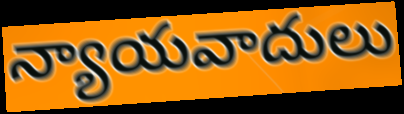
న్యాయవాదులు